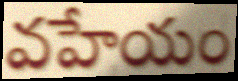
వహేయం